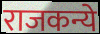
राजकन्ये